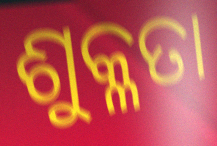
ଶୁକ୍ଳତା